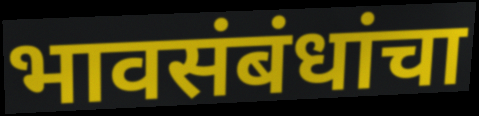
भावसंबंधांचा